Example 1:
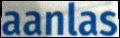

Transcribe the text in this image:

aanlas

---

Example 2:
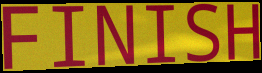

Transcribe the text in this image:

FINISH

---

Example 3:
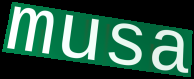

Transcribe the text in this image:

musa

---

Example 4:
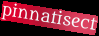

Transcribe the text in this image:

pinnatisect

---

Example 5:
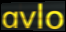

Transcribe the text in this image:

avlo